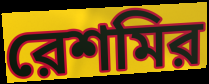
রেশমির